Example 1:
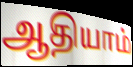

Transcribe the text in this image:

ஆதியாம்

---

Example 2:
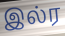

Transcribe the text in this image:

இல்ர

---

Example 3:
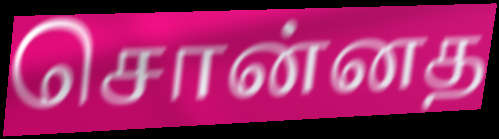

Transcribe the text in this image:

சொன்னத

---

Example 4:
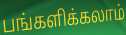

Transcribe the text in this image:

பங்களிக்கலாம்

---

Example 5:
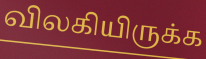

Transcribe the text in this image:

விலகியிருக்க